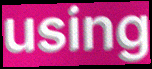
using